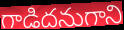
గాడిదనుగాని